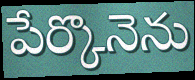
పేర్కొనెను